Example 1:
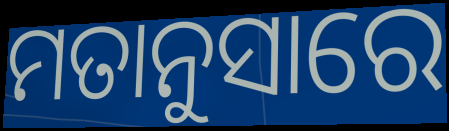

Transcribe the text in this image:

ମତାନୁସାରେ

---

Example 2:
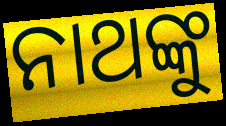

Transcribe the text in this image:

ନାଥଙ୍କୁ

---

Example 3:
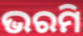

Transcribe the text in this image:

ଭରମି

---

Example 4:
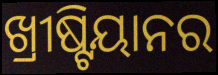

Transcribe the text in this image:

ଖ୍ରୀଷ୍ଟିୟାନର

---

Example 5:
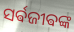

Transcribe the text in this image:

ସର୍ଵଜୀଵଙ୍କ